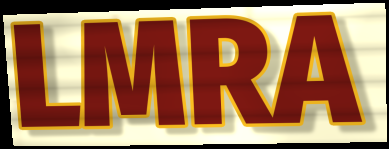
LMRA